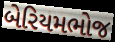
બેરિયમભોજ